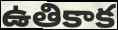
ఉతికాక